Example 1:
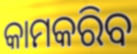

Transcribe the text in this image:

କାମକରିବ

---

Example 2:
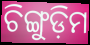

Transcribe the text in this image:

ଚିଙ୍ଗୁଡ଼ିମ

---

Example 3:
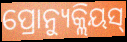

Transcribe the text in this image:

ପ୍ରୋନ୍ୟୁକ୍ଲିୟସ୍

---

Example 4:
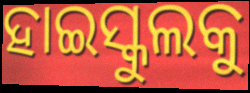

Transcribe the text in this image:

ହାଇସ୍କୁଲକୁ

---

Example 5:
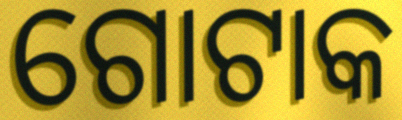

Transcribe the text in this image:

ଗୋଟାକ